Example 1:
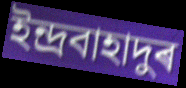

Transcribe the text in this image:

ইন্দ্ৰবাহাদুৰ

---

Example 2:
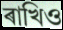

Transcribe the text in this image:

ৰাখিও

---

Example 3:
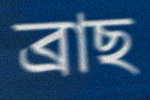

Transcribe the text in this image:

ব্ৰাছ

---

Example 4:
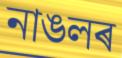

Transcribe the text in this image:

নাঙলৰ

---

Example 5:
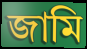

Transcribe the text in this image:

জামি